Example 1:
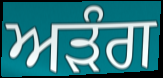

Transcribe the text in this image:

ਅੜੰਗ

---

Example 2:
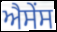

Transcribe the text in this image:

ਐਸੇਂਸ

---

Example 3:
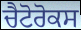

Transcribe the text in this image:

ਚੈਟੋਰੋਕਸ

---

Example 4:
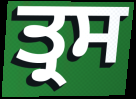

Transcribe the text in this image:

ਤ੍ਰਸ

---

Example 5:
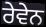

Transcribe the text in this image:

ਰੇਵੇਨ